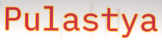
Pulastya